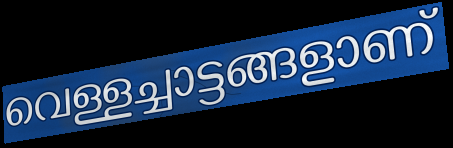
വെള്ളച്ചാട്ടങ്ങളാണ്